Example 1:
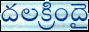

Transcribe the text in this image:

దలక్రిందై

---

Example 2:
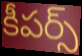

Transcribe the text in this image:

కీపర్స్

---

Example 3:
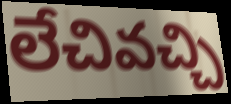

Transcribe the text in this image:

లేచివచ్చి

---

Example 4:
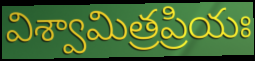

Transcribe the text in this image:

విశ్వామిత్రప్రియః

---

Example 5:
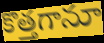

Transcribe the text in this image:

కొత్తగానూ